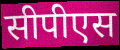
सीपीएस